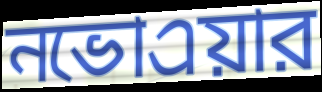
নভোএয়ার